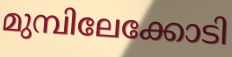
മുമ്പിലേക്കോടി